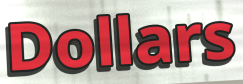
Dollars